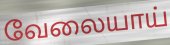
வேலையாய்